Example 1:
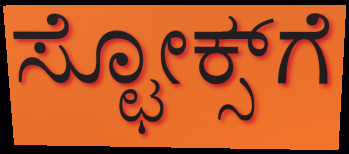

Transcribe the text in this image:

ಸ್ಟೋಕ್ಸ್‌ಗೆ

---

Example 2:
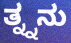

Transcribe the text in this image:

ತ್ನ್ನನು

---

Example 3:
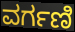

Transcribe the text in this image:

ವರ್ಗಣಿ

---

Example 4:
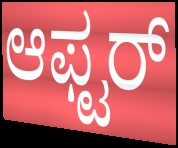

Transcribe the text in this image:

ಆಫ್ಟರ್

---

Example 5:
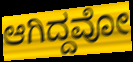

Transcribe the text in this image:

ಆಗಿದ್ದವೋ